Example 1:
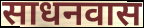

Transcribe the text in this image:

साधनवास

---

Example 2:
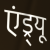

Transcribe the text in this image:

एंड्र्यू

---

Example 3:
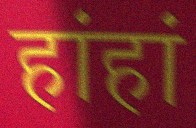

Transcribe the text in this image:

हांहां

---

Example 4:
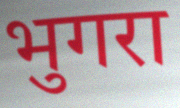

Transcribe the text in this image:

भुगरा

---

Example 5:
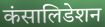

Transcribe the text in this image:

कंसालिडेशन